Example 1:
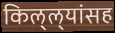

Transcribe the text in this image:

किल्ल्यांसह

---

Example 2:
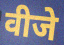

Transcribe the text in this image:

वीजे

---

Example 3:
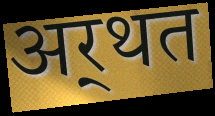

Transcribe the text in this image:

अर्थत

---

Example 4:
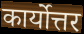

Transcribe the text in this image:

कार्योत्तर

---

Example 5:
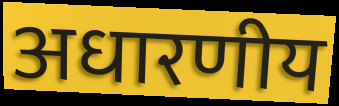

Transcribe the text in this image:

अधारणीय